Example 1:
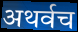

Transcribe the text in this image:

अथर्वच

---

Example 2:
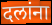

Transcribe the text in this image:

दलांना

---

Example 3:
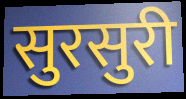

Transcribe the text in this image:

सुरसुरी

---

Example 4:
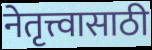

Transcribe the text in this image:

नेतृत्त्वासाठी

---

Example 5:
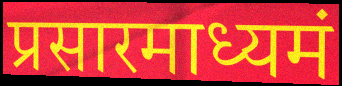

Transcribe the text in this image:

प्रसारमाध्यमं